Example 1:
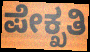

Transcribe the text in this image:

ಪೇಕ್ಖತಿ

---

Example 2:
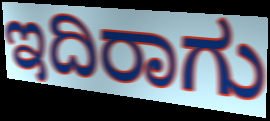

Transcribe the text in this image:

ಇದಿರಾಗು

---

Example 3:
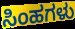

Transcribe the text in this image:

ಸಿಂಹಗಳು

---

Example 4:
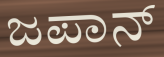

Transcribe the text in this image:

ಜಪಾನ್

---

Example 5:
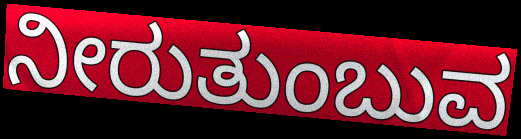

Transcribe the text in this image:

ನೀರುತುಂಬುವ